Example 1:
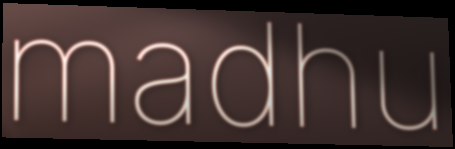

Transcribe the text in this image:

madhu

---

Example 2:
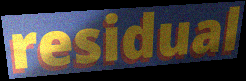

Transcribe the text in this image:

residual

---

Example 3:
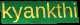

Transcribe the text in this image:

kyankthi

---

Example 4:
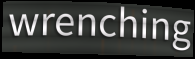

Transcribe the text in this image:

wrenching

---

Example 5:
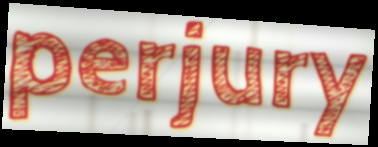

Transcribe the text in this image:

perjury